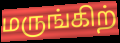
மருங்கிற்